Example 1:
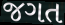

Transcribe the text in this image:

જગત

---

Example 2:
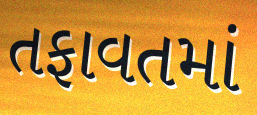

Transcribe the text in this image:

તફાવતમાં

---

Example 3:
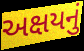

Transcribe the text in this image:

અક્ષયનું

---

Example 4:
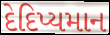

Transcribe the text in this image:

દેદિપ્યમાન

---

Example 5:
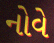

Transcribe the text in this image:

નોવે